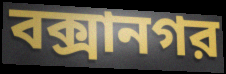
বক্সানগর